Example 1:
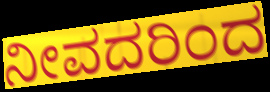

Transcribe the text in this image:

ನೀವದರಿಂದ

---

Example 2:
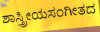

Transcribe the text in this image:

ಶಾಸ್ತ್ರೀಯಸಂಗೀತದ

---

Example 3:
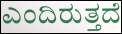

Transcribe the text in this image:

ಎಂದಿರುತ್ತದೆ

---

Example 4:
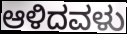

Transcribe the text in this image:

ಆಳಿದವಳು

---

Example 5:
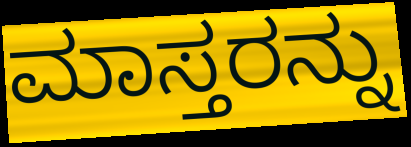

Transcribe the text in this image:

ಮಾಸ್ತರನ್ನು